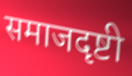
समाजदृष्टी